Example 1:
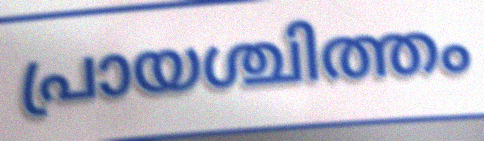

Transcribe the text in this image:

പ്രായശ്ചിത്തം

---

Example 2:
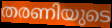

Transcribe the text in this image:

തരണിയുടെ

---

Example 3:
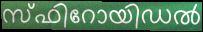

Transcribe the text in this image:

സ്ഫിറോയിഡൽ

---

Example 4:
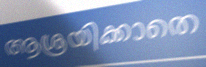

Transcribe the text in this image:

ആശ്രയിക്കാതെ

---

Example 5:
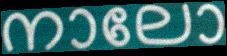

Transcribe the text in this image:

നാലോ